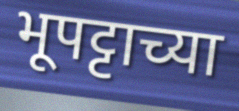
भूपट्टाच्या